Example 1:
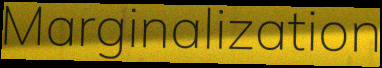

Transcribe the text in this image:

Marginalization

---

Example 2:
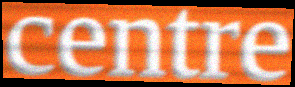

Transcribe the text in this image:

centre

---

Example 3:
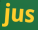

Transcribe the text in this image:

jus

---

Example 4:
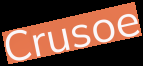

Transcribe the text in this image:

Crusoe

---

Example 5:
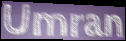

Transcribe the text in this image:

Umran